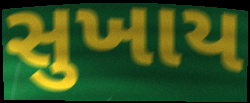
સુખાય